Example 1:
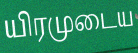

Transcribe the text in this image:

யிரமுடைய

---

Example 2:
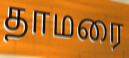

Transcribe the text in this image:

தாமரை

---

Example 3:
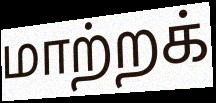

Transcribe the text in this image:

மாற்றக்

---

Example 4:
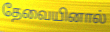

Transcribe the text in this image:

தேவையினால்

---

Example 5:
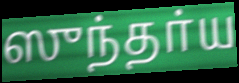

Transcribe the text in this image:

ஸுந்தர்ய